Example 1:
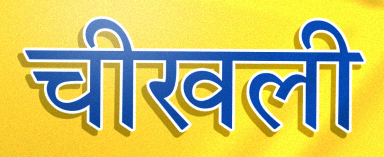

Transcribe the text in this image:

चीखली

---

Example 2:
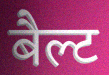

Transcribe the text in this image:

बैल्ट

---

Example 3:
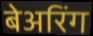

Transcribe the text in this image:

बेअरिंग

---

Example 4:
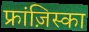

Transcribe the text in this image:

फ्रांज़िस्का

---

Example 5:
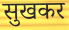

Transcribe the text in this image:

सुखकर